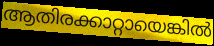
ആതിരക്കാറ്റായെങ്കിൽ